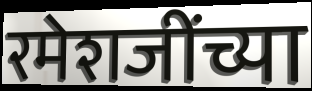
रमेशजींच्या